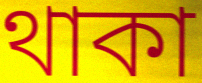
থাকা